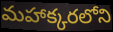
మహాక్కరలోని